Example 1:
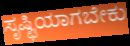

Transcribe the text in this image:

ಸೃಷ್ಟಿಯಾಗಬೇಕು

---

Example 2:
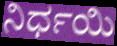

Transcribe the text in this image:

ನಿರ್ಧಯಿ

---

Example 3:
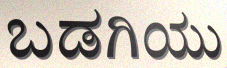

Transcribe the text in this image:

ಬಡಗಿಯು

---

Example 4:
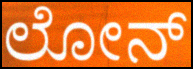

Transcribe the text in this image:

ಲೋನ್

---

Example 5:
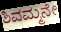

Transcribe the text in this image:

ಶಿವಮ್ಮನೇ